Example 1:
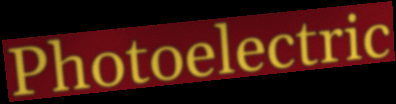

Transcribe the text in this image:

Photoelectric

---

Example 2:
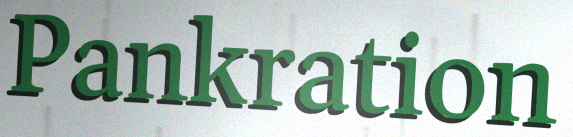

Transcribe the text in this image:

Pankration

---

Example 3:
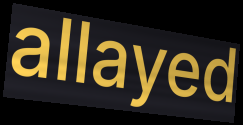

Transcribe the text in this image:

allayed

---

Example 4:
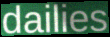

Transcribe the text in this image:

dailies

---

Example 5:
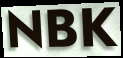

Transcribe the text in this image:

NBK